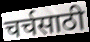
चर्चसाठी